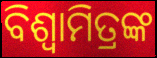
ବିଶ୍ଵାମିତ୍ରଙ୍କ